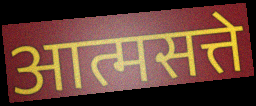
आत्मसत्ते